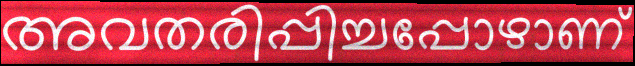
അവതരിപ്പിച്ചപ്പോഴാണ്